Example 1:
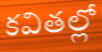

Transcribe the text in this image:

కవితల్లో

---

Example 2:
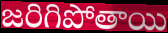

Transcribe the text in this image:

జరిగిపోతాయి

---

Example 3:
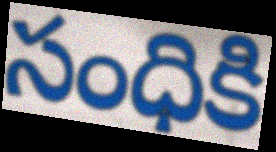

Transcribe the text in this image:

సంధికి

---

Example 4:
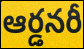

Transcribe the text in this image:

ఆర్డనరీ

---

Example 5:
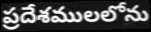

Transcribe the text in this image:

ప్రదేశములలోను